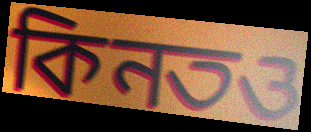
কিনতও